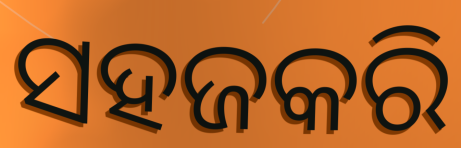
ସହଜକରି